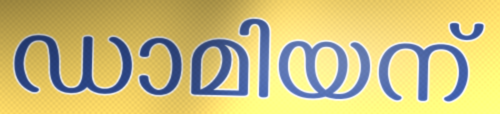
ഡാമിയന്